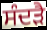
ਸੰਦੜੈ